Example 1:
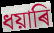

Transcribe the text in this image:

ধয়াৰি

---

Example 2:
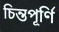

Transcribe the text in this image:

চিন্তপূৰ্ণি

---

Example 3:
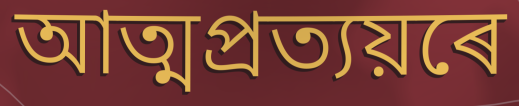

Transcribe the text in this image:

আত্মপ্ৰত্যয়ৰে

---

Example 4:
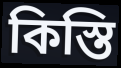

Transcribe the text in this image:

কিস্তি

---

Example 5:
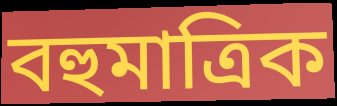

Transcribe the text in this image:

বহুমাত্ৰিক